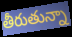
తీరుతున్నా